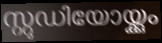
സ്റ്റുഡിയോയ്ക്കും